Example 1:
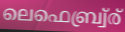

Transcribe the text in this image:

ലെഫെബ്ര്വ്ര്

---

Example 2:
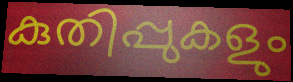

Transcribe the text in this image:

കുതിപ്പുകളും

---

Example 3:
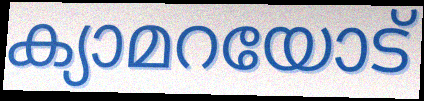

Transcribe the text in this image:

ക്യാമറയോട്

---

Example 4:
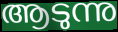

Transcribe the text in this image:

ആടുന്നു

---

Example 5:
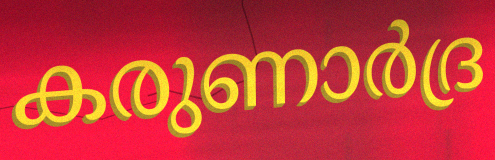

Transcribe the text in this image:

കരുണാർദ്ര